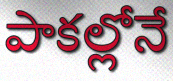
పాకల్లోనే